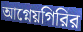
আগ্নেয়গিরির